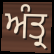
ਅੰਤ੍ਰ